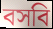
বসবি